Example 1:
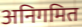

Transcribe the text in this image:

अनिगमित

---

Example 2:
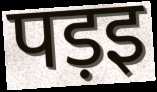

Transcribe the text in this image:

पड़इ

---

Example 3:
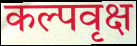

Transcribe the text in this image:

कल्‍पवृक्ष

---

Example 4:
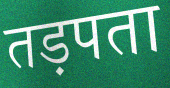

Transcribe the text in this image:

तड़पता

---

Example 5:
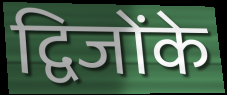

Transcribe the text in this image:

द्विजोंके